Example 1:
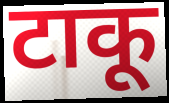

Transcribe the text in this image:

टाकू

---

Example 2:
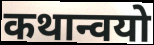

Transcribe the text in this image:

कथान्वयो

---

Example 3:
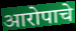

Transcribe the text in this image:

आरोपाचे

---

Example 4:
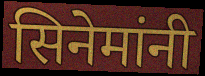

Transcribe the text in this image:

सिनेमांनी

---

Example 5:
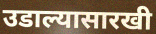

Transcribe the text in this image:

उडाल्यासारखी